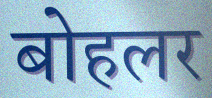
बोहलर